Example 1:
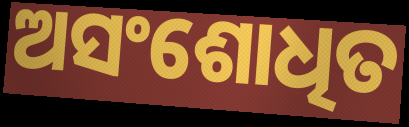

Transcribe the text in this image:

ଅସଂଶୋଧିତ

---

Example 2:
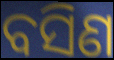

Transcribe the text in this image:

ବସିଣ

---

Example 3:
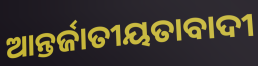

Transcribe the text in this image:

ଆନ୍ତର୍ଜାତୀୟତାବାଦୀ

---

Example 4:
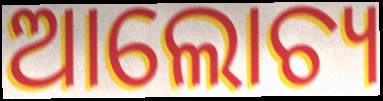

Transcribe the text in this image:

ଆଲୋଚ୍ୟ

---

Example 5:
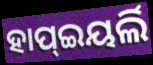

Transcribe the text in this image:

ହାପ୍ଇୟର୍ଲି